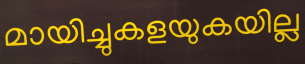
മായിച്ചുകളയുകയില്ല